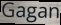
Gagan